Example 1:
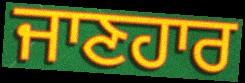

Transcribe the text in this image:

ਜਾਣਹਾਰ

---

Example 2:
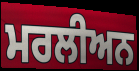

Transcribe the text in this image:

ਮਰਲੀਅਨ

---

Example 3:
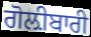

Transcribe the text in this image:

ਗੋਲ਼ੀਬਾਰੀ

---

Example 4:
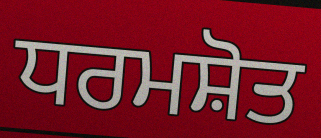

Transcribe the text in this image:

ਧਰਮਸ਼ੋਤ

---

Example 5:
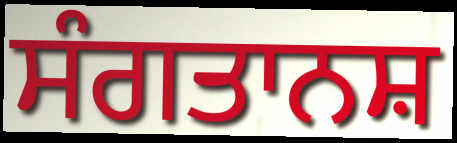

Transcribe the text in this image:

ਸੰਗਤਾਨਸ਼